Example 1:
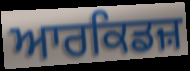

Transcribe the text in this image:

ਆਰਕਿਡਜ਼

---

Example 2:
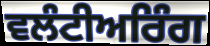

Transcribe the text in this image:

ਵਲੰਟੀਅਰਿੰਗ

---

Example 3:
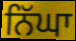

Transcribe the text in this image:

ਨਿੱਘਾ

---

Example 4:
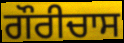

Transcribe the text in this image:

ਗੌਰੀਚਾਸ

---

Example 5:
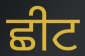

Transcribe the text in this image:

ਛੀਟ